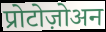
प्रोटोज़ोअन